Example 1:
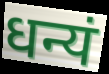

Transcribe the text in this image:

धन्यं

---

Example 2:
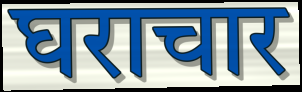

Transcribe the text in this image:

घराचार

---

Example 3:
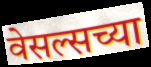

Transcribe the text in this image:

वेसल्सच्या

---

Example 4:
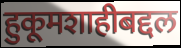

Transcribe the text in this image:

हुकूमशाहीबद्दल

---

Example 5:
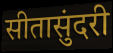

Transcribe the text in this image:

सीतासुंदरी